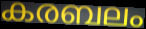
കരബലം